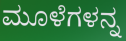
ಮೂಳೆಗಳನ್ನ